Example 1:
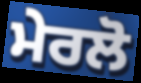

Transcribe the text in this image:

ਮੇਰਲੋ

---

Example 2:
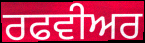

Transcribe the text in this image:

ਰਫਵੀਅਰ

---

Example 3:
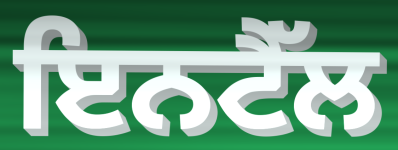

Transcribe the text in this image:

ਇਨਟੈੱਲ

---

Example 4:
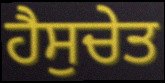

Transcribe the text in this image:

ਹੈਸੁਚੇਤ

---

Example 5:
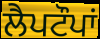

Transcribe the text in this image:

ਲੈਪਟੌਪਾਂ